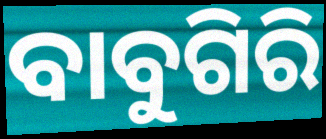
ବାବୁଗିରି